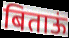
बिताऊं